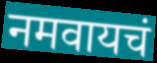
नमवायचं